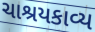
ચાશ્રયકાવ્ય